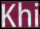
Khi